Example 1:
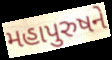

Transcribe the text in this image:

મહાપુરુષને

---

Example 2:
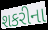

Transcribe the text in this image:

શકરીના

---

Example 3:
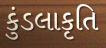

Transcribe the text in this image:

કુંડલાકૃતિ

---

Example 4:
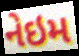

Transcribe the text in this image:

નેઇમ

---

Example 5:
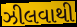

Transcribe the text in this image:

ઝીલવાથી